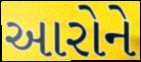
આરોને